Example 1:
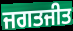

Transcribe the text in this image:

ਜਗਤਜੀਤ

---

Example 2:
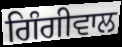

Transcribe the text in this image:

ਗਿੰਗੀਵਾਲ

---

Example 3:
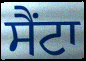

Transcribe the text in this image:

ਸੈਂਟਾ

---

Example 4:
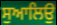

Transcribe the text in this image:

ਸੁਆਲਿਉ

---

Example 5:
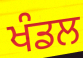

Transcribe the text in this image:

ਖੰਡਲ